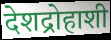
देशद्रोहाशी